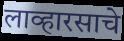
लाव्हारसाचे